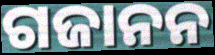
ଗଜାନନ